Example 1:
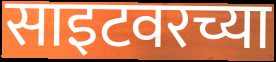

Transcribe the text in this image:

साइटवरच्या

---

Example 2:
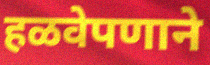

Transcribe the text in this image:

हळवेपणाने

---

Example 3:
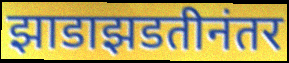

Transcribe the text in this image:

झाडाझडतीनंतर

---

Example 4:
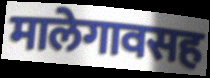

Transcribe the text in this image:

मालेगावसह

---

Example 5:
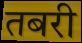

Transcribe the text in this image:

तबरी